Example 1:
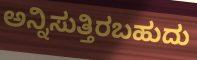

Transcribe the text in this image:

ಅನ್ನಿಸುತ್ತಿರಬಹುದು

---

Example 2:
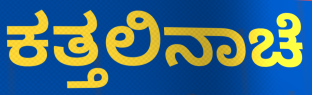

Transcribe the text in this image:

ಕತ್ತಲಿನಾಚೆ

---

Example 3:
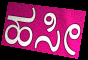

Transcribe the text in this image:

ಹಸೀ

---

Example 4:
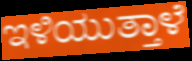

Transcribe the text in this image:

ಇಳಿಯುತ್ತಾಳೆ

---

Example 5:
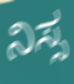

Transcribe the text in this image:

ನಿಸ್ಸ